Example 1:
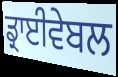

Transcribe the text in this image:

ਡ੍ਰਾਈਵੇਬਲ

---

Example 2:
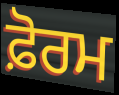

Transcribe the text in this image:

ਫ਼ੋਰਮ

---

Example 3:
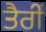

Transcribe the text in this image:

ਤੈਰੀਂ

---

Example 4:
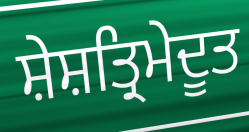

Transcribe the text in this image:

ਸ਼ੇਸ਼ਤ੍ਰਿਮੇਦੂਤ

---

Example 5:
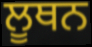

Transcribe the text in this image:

ਲੂਥਨ